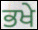
ਭਖੇ